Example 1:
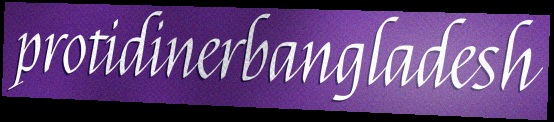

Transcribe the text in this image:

protidinerbangladesh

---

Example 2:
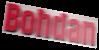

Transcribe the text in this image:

Bohdan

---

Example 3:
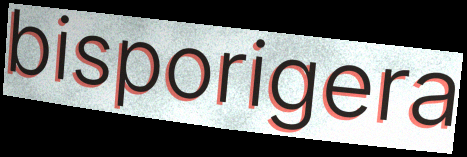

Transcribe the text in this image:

bisporigera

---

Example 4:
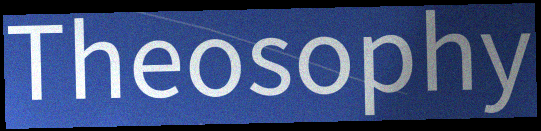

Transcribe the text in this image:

Theosophy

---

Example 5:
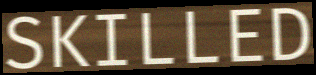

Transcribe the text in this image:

SKILLED